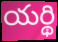
యర్థి